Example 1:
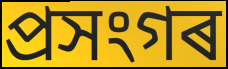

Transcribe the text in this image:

প্ৰসংগৰ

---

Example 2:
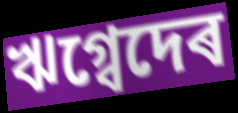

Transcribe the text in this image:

ঋগ্বেদেৰ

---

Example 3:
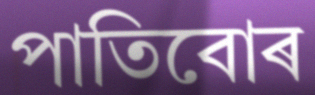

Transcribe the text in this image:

পাতিবোৰ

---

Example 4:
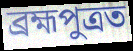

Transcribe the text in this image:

ব্ৰহ্মপুত্ৰত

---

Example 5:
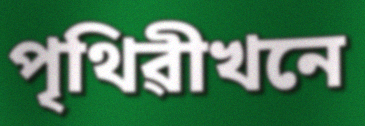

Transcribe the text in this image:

পৃথিৱীখনে